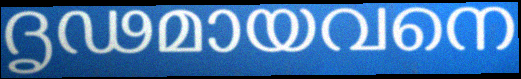
ദൃഢമായവനെ